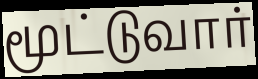
மூட்டுவார்